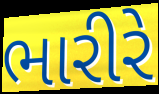
ભારીરે